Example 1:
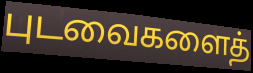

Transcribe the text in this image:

புடவைகளைத்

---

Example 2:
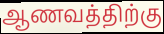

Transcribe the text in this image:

ஆணவத்திற்கு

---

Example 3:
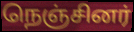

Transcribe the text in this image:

நெஞ்சினர்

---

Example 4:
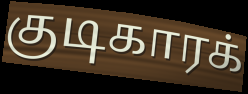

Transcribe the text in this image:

குடிகாரக்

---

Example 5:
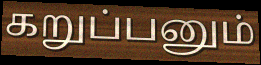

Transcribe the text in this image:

கறுப்பனும்